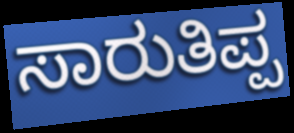
ಸಾರುತಿಪ್ಪ